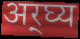
अर्घ्य